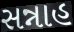
સન્નાહ